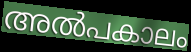
അൽപകാലം